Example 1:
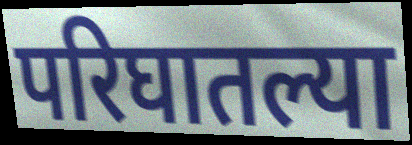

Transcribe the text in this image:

परिघातल्या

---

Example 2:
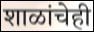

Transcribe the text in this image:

शाळांचेही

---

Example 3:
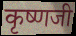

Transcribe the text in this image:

कृष्णजी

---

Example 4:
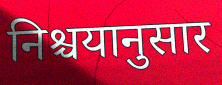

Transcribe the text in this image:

निश्चयानुसार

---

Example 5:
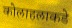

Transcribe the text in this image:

कोलाहलाकडे